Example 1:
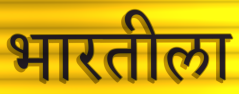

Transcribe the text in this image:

भारतीला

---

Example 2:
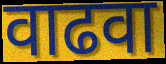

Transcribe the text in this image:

वाढवा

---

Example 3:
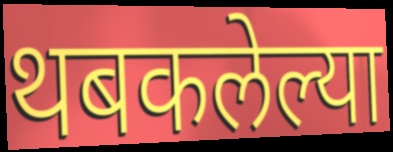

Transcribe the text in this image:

थबकलेल्या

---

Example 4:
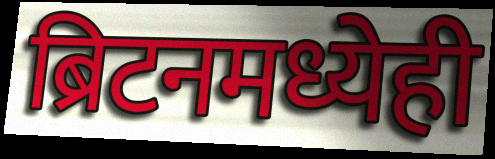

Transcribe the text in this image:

ब्रिटनमध्येही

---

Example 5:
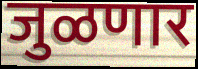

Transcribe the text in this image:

जुळणार